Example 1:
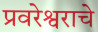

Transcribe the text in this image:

प्रवरेश्वराचे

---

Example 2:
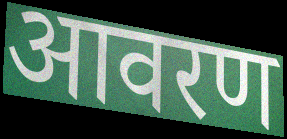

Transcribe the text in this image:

आवरण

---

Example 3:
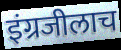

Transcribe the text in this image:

इंग्रजीलाच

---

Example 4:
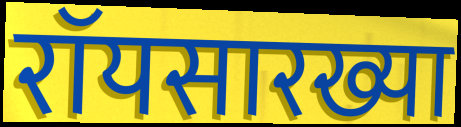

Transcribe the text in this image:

रॉयसारख्या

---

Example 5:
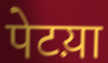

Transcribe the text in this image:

पेटय़ा